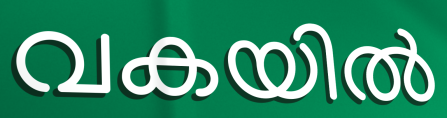
വകയിൽ